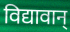
विद्यावान्